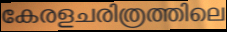
കേരളചരിത്രത്തിലെ